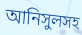
আনিসুলসহ